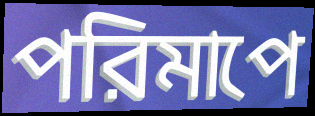
পরিমাপে